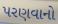
પરણવાનો